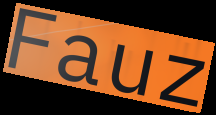
Fauz